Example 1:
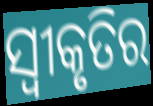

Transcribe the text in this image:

ସ୍ଵୀକୃତିର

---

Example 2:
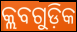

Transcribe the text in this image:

କ୍ଲବଗୁଡ଼ିକ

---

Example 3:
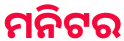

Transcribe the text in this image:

ମନିଟର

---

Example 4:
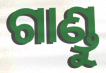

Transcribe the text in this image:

ଗାଣ୍ଡୁ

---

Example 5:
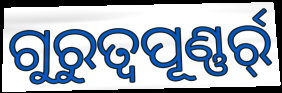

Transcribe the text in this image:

ଗୁରୁତ୍ୱପୂଣ୍ଣର୍ର୍